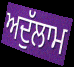
ਅਦੁੱਲਾਮ